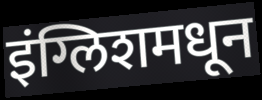
इंग्लिशमधून